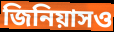
জিনিয়াসও